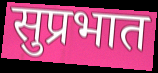
सुप्रभात